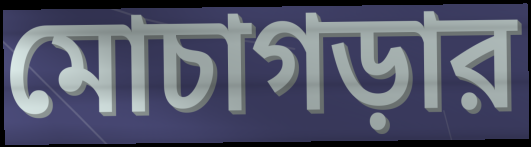
মোচাগড়ার